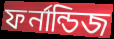
ফর্নান্ডিজ